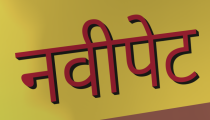
नवीपेट